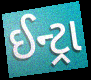
ઈન્ટ્રા